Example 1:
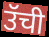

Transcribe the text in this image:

उॅची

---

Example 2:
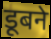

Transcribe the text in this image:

डूबने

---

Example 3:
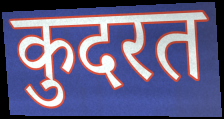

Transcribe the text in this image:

कुदरत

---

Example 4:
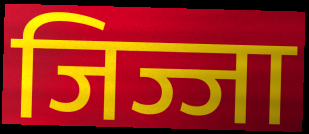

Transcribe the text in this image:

जिज्जा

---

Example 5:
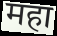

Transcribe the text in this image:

महा